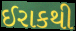
ઈરાકથી